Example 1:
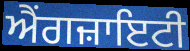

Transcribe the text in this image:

ਐਂਗਜ਼ਾਇਟੀ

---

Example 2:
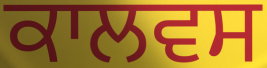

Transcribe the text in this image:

ਕਾਲਵਸ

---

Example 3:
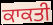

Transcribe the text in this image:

ਕਾਕਤੀ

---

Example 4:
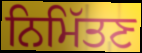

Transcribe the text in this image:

ਨਿਮਿੱਤਣ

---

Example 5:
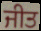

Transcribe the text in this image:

ਜੀਤ